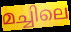
മച്ചിലെ